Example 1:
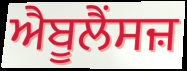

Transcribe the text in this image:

ਐਬੂਲੈਂਸਜ਼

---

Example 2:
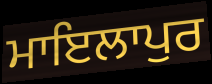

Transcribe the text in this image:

ਮਾਇਲਾਪੁਰ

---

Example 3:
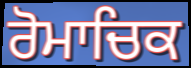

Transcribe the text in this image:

ਰੋਮਾਚਿਕ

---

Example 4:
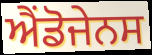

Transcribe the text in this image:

ਐਂਡੋਜੇਨਸ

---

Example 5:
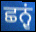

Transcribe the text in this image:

ਛਨ੍ਦਂ